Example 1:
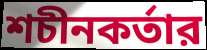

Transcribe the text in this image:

শচীনকর্তার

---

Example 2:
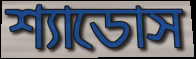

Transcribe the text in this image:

শ্যাডোস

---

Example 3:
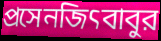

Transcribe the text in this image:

প্রসেনজিৎবাবুর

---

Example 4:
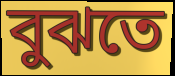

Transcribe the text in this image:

বুঝতে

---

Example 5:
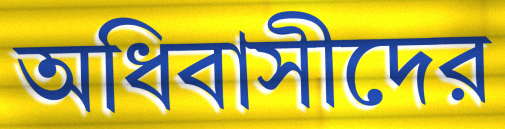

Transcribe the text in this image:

অধিবাসীদের